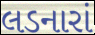
લડનારાં